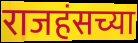
राजहंसच्या